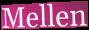
Mellen